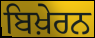
ਬਿਖ਼ੇਰਨ